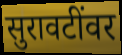
सुरावटींवर